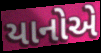
યાનોએ